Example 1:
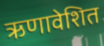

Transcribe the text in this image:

ऋणावेशित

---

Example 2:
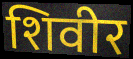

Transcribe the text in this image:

शिवीर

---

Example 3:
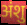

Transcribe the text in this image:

अंशु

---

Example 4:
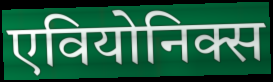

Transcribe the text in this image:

एवियोनिक्स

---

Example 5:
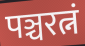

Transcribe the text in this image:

पञ्चरत्नं